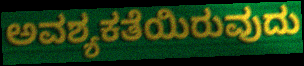
ಅವಶ್ಯಕತೆಯಿರುವುದು